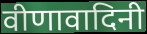
वीणावादिनी